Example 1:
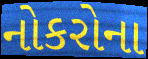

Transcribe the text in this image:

નોકરોના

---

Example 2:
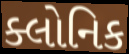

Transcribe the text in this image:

ક્લોનિક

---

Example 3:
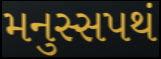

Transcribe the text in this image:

મનુસ્સપથં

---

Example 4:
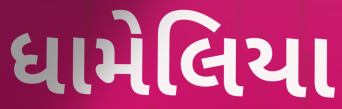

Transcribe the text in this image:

ધામેલિયા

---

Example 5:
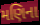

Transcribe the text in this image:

મણિના